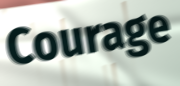
Courage